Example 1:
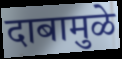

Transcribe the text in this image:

दाबामुळे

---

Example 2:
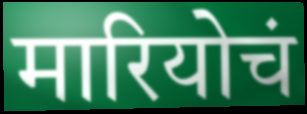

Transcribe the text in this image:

मारियोचं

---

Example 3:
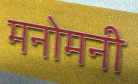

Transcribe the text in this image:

मनोमनी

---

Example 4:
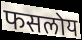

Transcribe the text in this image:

फसलोय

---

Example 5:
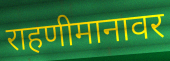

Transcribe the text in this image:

राहणीमानावर